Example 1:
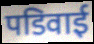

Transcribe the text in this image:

पडिवाई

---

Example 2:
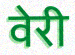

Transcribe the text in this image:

वेरी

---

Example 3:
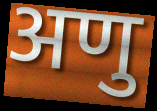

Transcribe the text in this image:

अणु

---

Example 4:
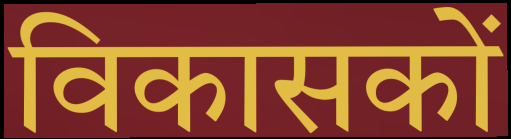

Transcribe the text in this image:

विकासकों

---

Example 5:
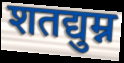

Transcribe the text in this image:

शतद्युम्न